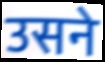
उसने